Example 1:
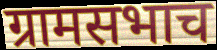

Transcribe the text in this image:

ग्रामसभाच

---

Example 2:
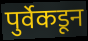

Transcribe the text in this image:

पुर्वेकडून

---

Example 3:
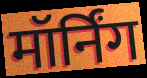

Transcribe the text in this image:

मॉर्निंग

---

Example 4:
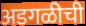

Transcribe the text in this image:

अडगळीची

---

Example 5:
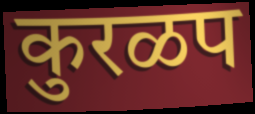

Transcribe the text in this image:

कुरळप